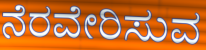
ನೆರವೇರಿಸುವ